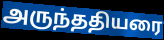
அருந்ததியரை